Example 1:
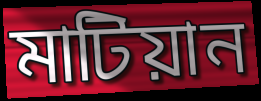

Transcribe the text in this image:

মাটিয়ান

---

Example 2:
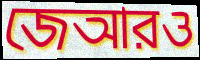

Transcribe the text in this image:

জেআরও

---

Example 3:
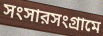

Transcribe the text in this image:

সংসারসংগ্রামে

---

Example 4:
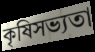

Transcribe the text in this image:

কৃষিসভ্যতা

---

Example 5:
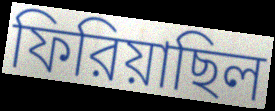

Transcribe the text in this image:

ফিরিয়াছিল